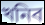
খনিব